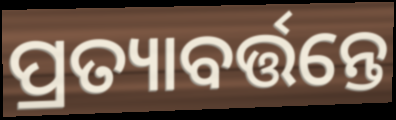
ପ୍ରତ୍ୟାବର୍ତ୍ତନ୍ତେ